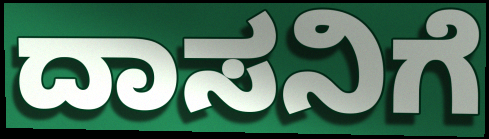
ದಾಸನಿಗೆ